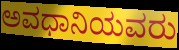
ಅವಧಾನಿಯವರು